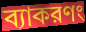
ব্যাকরণং